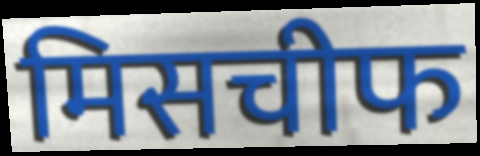
मिसचीफ